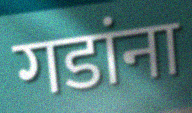
गडांना